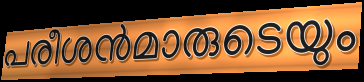
പരീശൻമാരുടെയും